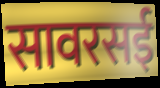
सावरसई